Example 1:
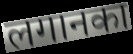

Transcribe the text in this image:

लगानका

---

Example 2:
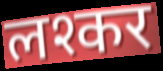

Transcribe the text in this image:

लश्कर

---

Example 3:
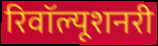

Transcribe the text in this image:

रिवॉल्यूशनरी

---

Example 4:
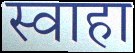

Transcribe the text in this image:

स्वाहा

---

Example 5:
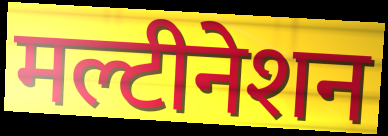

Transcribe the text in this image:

मल्टीनेशन